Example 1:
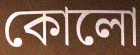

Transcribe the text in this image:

কোলো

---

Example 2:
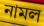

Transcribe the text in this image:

নামল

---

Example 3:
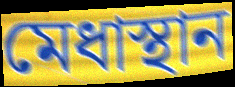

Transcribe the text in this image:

মেধাস্থান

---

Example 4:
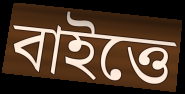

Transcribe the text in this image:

বাইত্তে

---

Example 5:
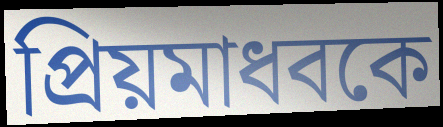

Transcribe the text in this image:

প্রিয়মাধবকে